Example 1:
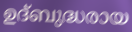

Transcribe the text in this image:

ഉദ്ബുദ്ധരായ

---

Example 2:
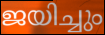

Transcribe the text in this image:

ജയിച്ചും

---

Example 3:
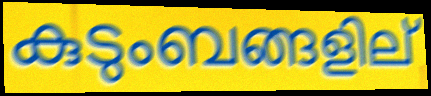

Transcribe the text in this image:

കുടുംബങ്ങളില്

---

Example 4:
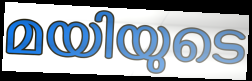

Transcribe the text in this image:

മയിയുടെ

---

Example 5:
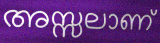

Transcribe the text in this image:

അസ്സലാണ്